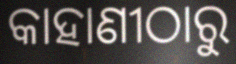
କାହାଣୀଠାରୁ